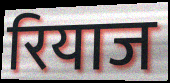
रियाज